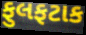
ફુલફટાક